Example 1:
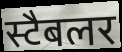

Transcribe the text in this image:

स्टैबलर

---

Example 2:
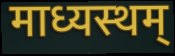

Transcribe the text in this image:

माध्यस्थम्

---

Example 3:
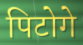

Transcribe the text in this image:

पिटोगे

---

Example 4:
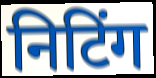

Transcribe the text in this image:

निटिंग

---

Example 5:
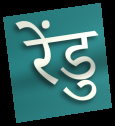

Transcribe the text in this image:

रेंडु